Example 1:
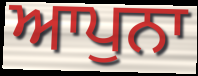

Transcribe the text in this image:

ਆਪੁਨਾ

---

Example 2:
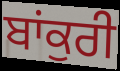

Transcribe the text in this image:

ਬਾਂਕੁਰੀ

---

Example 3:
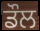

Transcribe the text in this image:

ਡੌਲ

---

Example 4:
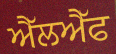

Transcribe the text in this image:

ਐੱਲਐੱਫ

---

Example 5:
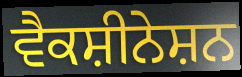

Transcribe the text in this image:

ਵੈਕਸ਼ੀਨੇਸ਼ਨ